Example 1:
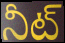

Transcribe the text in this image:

నీట్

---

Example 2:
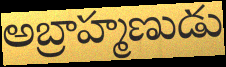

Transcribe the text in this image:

అబ్రాహ్మణుడు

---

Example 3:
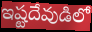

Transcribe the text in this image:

ఇష్టదేవుడిలో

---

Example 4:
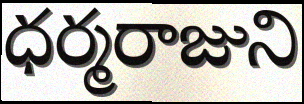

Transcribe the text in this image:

ధర్మరాజుని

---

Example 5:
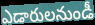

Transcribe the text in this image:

ఎడారులనుండీ